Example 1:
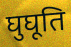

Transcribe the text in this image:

घुघूति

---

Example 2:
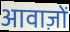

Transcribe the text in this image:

आवाज़ों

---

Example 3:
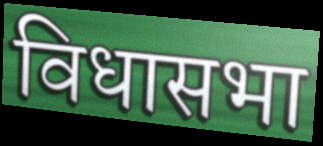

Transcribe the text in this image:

विधासभा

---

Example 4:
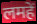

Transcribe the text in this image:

लमहें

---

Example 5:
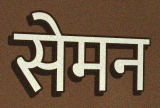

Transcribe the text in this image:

सेमन